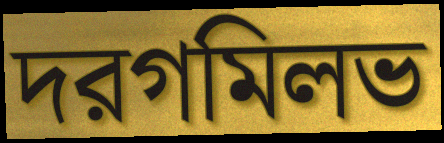
দরগমিলভ